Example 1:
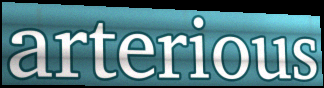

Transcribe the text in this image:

arterious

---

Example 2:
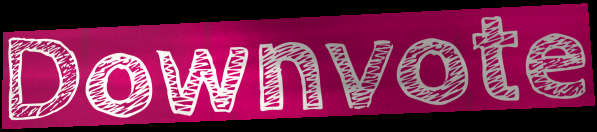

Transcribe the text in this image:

Downvote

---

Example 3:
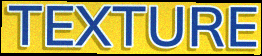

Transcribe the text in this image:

TEXTURE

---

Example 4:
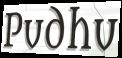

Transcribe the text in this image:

Pudhu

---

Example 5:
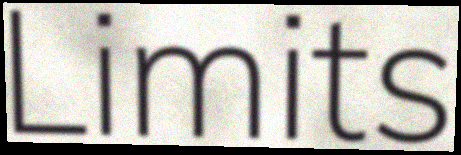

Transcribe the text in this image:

Limits